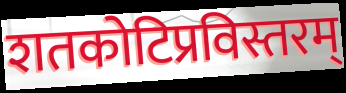
शतकोटिप्रविस्तरम्